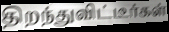
திறந்துவிட்டீர்கள்